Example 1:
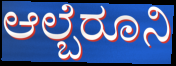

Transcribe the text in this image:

ಆಲ್ಬೆರೂನಿ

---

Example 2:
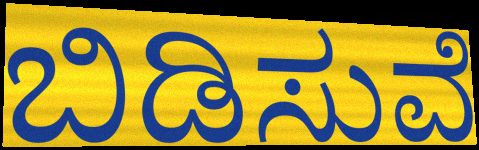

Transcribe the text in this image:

ಬಿಡಿಸುವೆ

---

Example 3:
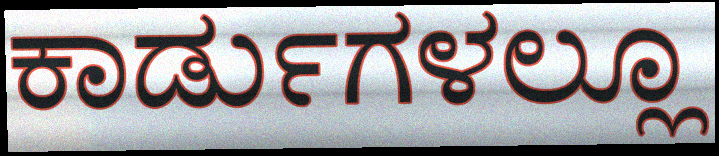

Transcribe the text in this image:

ಕಾರ್ಡುಗಳಲ್ಲೂ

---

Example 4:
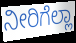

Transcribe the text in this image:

ನೀರಿಗೆಲ್ಲಾ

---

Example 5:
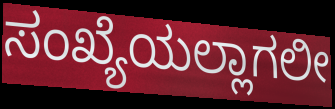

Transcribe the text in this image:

ಸಂಖ್ಯೆಯಲ್ಲಾಗಲೀ